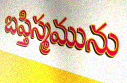
బప్తిస్మమును